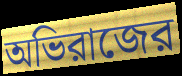
অভিরাজের